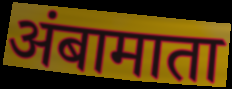
अंबामाता